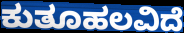
ಕುತೂಹಲವಿದೆ